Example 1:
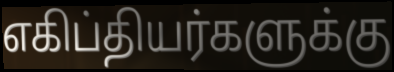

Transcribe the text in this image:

எகிப்தியர்களுக்கு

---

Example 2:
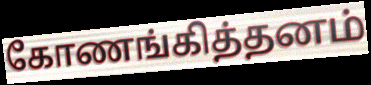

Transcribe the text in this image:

கோணங்கித்தனம்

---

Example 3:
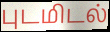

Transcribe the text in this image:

புடமிடல்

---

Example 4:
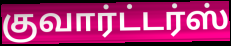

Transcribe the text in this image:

குவார்ட்டர்ஸ்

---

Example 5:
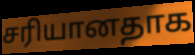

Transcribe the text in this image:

சரியானதாக